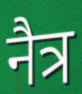
नैत्र